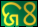
ଜଃ